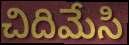
చిదిమేసి